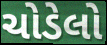
ચોડેલો